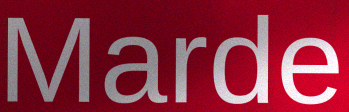
Marde